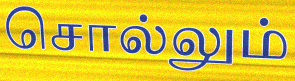
சொல்லும்